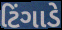
ટિંગાડે